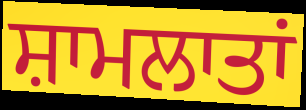
ਸ਼ਾਮਲਾਤਾਂ